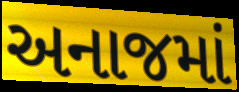
અનાજમાં